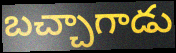
బచ్చాగాడు